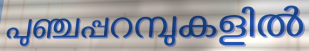
പുഞ്ചപ്പറമ്പുകളിൽ